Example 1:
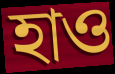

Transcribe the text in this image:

হাও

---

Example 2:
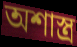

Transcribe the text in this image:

অশাস্ত্র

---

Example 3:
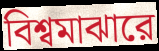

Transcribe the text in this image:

বিশ্বমাঝারে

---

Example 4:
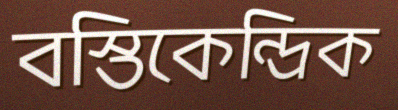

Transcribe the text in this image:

বস্তিকেন্দ্রিক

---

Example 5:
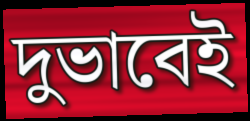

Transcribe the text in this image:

দুভাবেই